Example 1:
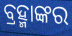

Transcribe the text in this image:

ବ୍ରହ୍ମାଙ୍କର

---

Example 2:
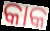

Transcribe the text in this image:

କାକ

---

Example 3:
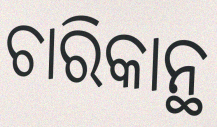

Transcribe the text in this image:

ଚାରିକାନ୍ଥ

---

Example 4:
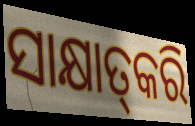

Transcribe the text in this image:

ସାକ୍ଷାତ୍‌କରି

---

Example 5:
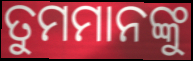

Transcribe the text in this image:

ତୁମମାନଙ୍କୁ